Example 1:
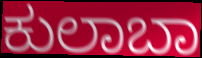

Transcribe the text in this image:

ಕುಲಾಬಾ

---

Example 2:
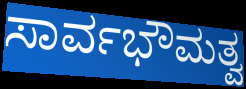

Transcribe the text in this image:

ಸಾರ್ವಭೌಮತ್ವ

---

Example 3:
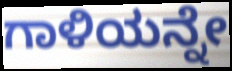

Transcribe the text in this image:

ಗಾಳಿಯನ್ನೇ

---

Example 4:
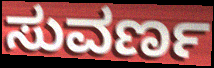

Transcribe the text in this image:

ಸುವರ್ಣ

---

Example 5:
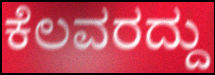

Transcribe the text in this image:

ಕೆಲವರದ್ದು